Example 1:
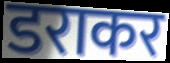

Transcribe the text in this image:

डराकर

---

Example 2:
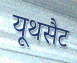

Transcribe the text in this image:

यूथसैट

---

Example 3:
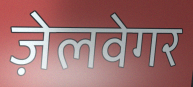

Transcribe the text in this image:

ज़ेलवेगर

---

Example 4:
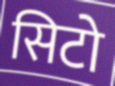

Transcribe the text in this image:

सिटो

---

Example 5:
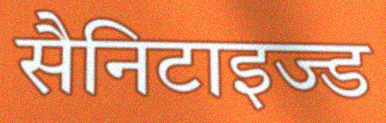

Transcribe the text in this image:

सैनिटाइज्ड